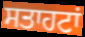
ਸਤਾਹਟਾਂ